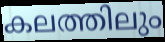
കലത്തിലും